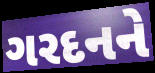
ગરદનને